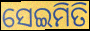
ସେଇମିତି